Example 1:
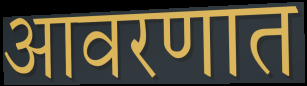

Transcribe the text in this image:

आवरणात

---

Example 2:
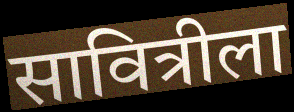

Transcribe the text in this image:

सावित्रीला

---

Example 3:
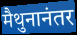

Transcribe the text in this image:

मैथुनानंतर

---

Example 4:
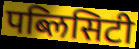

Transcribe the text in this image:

पब्लिसिटी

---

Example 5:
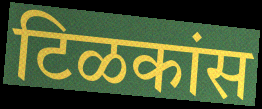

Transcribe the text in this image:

टिळकांस